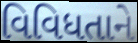
વિવિધતાને